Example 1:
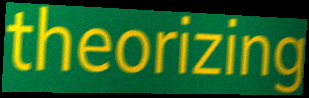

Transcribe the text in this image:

theorizing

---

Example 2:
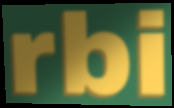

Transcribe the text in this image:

rbi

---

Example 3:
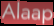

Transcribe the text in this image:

Alaap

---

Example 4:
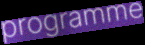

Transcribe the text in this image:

programme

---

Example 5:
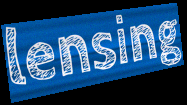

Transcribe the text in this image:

lensing